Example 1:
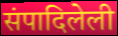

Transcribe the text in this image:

संपादिलेली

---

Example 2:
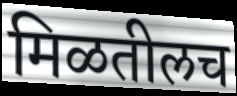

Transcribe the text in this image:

मिळतीलच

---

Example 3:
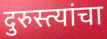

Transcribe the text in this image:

दुरुस्त्यांचा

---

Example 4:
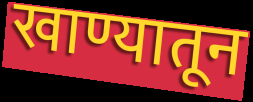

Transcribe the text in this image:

खाण्यातून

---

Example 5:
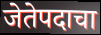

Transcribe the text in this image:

जेतेपदाचा